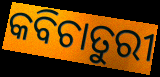
କବିଚାତୁରୀ